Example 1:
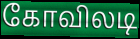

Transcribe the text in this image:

கோவிலடி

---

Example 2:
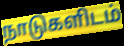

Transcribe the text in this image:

நாடுகளிடம்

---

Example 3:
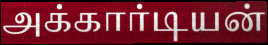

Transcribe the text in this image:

அக்கார்டியன்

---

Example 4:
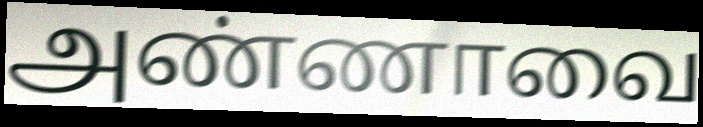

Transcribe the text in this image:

அண்ணாவை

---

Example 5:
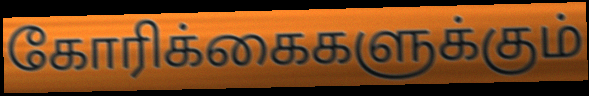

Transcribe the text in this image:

கோரிக்கைகளுக்கும்